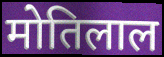
मोतिलाल